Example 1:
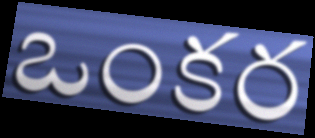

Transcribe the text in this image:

ఒంకర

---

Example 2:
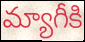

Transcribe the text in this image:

మ్యాగీకి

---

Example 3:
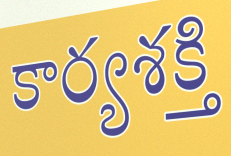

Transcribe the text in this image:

కార్యశక్తి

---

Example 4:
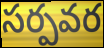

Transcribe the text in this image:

సర్పవర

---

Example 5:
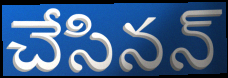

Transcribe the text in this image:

చేసినన్